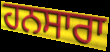
ਹਨਸਾਰਾ